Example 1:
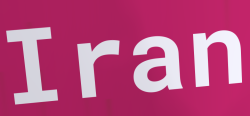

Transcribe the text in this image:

Iran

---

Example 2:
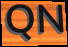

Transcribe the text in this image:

QN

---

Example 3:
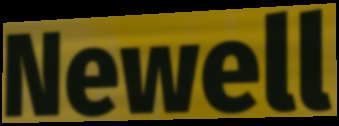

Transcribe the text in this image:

Newell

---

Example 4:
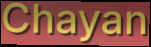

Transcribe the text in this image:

Chayan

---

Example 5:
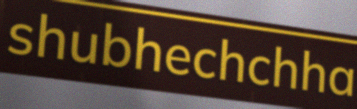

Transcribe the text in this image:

shubhechchha